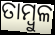
ତାମ୍ୱୁଳ